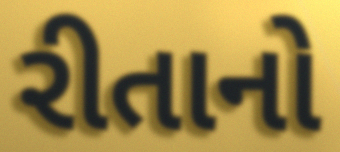
રીતાનો